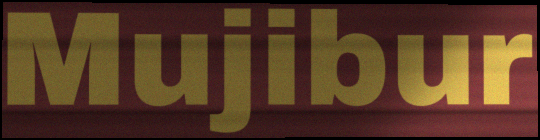
Mujibur